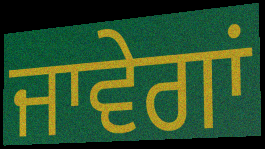
ਜਾਵੇਗਾਂ